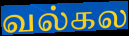
வல்கல